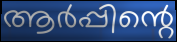
ആർപ്പിന്റെ